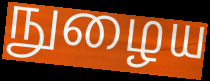
நுழைய